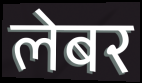
लेबर